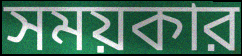
সময়কার